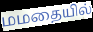
மமதையில்